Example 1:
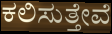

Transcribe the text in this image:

ಕಲಿಸುತ್ತೇವೆ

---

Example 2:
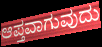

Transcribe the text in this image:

ಆಪ್ತವಾಗುವುದು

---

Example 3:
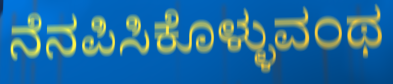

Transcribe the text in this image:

ನೆನಪಿಸಿಕೊಳ್ಳುವಂಥ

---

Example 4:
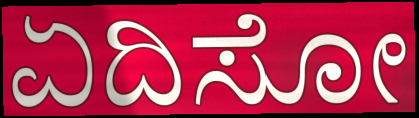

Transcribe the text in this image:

ಏದಿಸೋ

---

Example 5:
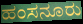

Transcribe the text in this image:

ಹಂಸನೂರು